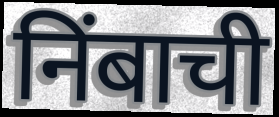
निंबाची